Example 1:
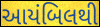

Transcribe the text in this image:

આયંબિલથી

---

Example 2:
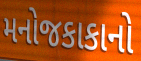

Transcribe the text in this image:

મનોજકાકાનો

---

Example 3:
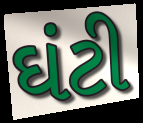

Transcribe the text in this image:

ઘંટી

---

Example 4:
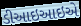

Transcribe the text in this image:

ડીઆઇઆઇએ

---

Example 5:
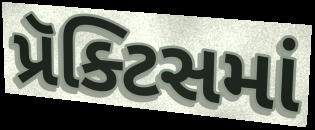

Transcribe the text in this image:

પ્રૅક્ટિસમાં